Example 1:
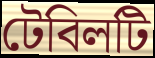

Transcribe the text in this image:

টেবিলটি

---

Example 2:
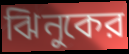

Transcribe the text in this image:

ঝিনুকের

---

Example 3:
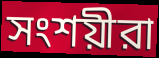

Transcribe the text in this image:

সংশয়ীরা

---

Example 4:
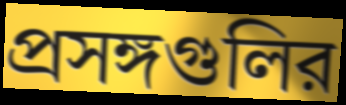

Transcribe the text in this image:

প্রসঙ্গগুলির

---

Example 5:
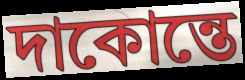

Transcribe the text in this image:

দাকোন্তে